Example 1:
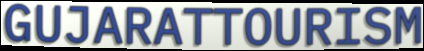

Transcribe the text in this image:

GUJARATTOURISM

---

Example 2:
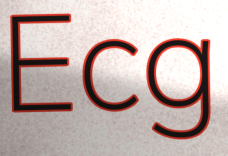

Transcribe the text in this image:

Ecg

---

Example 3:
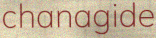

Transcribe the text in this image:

chanagide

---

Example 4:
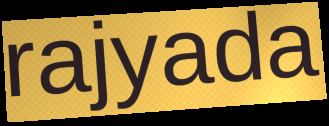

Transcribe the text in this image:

rajyada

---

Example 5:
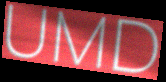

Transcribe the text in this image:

UMD